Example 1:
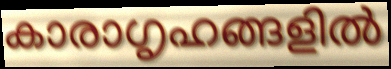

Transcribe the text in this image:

കാരാഗൃഹങ്ങളിൽ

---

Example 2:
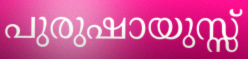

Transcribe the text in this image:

പുരുഷായുസ്സ്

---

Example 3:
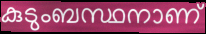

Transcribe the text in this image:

കുടുംബസ്ഥനാണ്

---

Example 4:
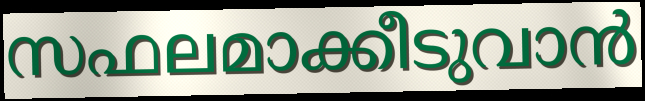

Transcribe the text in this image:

സഫലമാക്കീടുവാൻ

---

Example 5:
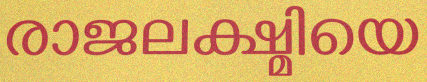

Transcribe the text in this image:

രാജലക്ഷ്മിയെ